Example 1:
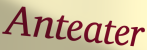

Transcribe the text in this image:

Anteater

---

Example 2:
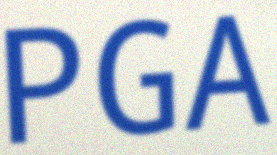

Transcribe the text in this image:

PGA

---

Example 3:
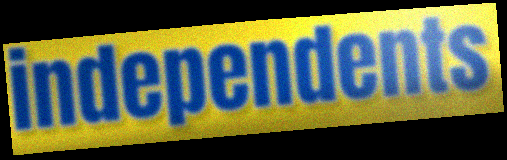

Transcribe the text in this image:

independents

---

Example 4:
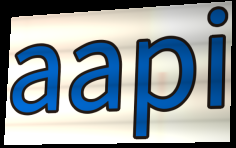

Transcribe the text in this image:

aapi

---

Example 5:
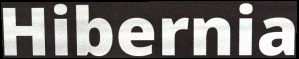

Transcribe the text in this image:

Hibernia